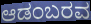
ಆಡಂಬರವ